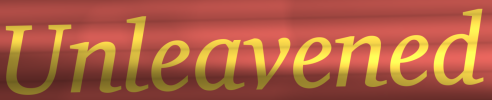
Unleavened